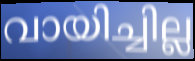
വായിച്ചില്ല